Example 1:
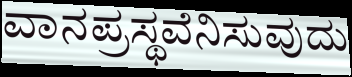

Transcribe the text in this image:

ವಾನಪ್ರಸ್ಥವೆನಿಸುವುದು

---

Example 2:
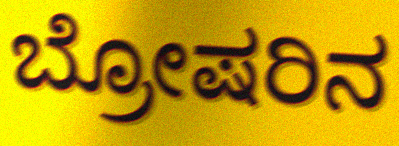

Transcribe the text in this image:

ಬ್ರೋಷರಿನ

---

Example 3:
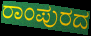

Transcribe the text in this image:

ರಾಂಪುರದ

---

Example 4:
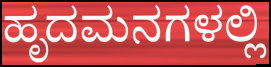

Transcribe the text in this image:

ಹೃದಮನಗಳಲ್ಲಿ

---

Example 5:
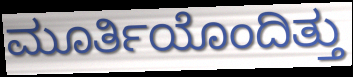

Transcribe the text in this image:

ಮೂರ್ತಿಯೊಂದಿತ್ತು